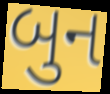
બુન